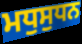
ਮਧੁਸੁਧਨ